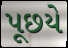
પૂછયે